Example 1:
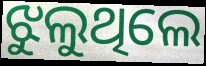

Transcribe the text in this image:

ଝୁଲୁଥିଲେ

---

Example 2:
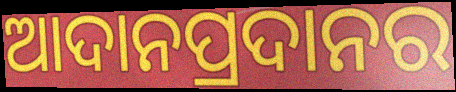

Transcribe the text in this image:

ଆଦାନପ୍ରଦାନର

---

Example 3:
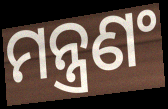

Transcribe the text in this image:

ମନ୍ତ୍ରଣଂ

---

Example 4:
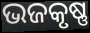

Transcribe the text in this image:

ଭଜକୃଷ୍ଣ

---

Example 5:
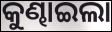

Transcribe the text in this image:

କୁଣ୍ଢାଇଲା